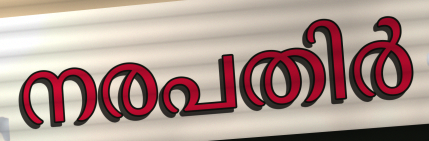
നരപതിർ